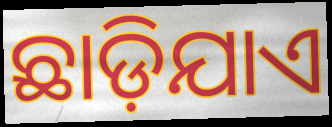
ଛାଡ଼ିଯାଏ